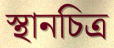
স্থানচিত্র